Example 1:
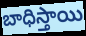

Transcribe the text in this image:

బాధిస్తాయి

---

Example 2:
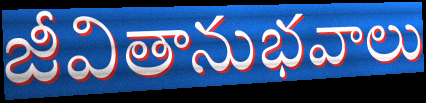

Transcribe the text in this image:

జీవితానుభవాలు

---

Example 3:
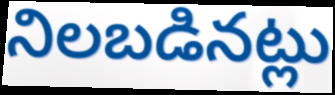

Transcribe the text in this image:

నిలబడినట్లు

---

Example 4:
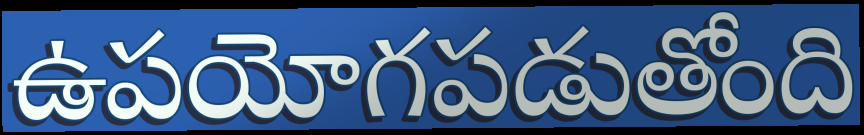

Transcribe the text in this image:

ఉపయోగపడుతోంది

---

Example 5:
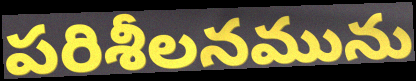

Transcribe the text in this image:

పరిశీలనమును